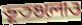
ভূতগুলোও